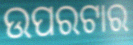
ଉପରଟାର